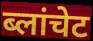
ब्लांचेट